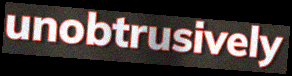
unobtrusively